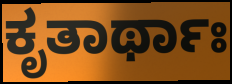
ಕೃತಾರ್ಥಾಃ